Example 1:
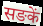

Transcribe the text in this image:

सङकें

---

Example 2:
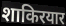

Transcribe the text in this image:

शाकिरयार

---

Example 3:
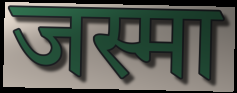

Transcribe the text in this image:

जस्मा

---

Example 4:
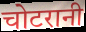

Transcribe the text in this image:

चोटरानी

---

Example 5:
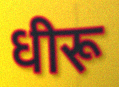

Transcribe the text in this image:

धीरू